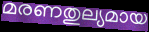
മരണതുല്യമായ